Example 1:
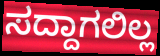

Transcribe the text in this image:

ಸದ್ದಾಗಲಿಲ್ಲ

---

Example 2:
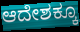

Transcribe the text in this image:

ಆದೇಶಕ್ಕೂ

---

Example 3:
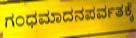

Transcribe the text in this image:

ಗಂಧಮಾದನಪರ್ವತಕ್ಕೆ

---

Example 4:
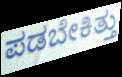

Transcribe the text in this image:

ಪಡಬೇಕಿತ್ತು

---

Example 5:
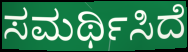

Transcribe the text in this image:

ಸಮರ್ಥಿಸಿದೆ